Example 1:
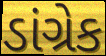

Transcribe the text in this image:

ડાંગ્રેક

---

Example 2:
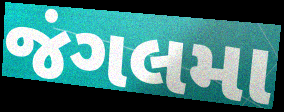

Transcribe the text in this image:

જંગલમા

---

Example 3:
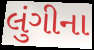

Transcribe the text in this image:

લુંગીના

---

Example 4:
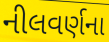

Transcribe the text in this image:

નીલવર્ણના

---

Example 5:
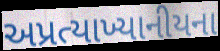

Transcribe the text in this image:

અપ્રત્યાખ્યાનીયના